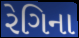
રેગિના